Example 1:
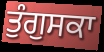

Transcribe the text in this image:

ਤੁੰਗੁਸਕਾ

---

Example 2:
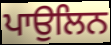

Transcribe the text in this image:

ਪਾਉਲਿਨ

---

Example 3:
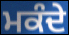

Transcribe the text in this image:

ਮਕੰਦੇ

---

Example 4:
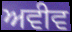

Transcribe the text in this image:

ਅਵੀਵ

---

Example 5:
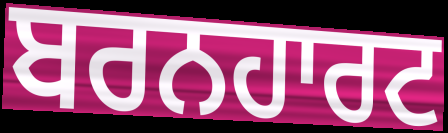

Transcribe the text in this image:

ਬਰਨਹਾਰਟ